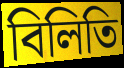
বিলিতি